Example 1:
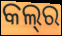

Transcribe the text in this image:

କଲ୍‌ର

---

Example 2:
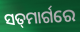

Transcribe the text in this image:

ସତ୍‌ମାର୍ଗରେ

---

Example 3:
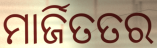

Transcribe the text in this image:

ମାର୍ଜିତତର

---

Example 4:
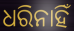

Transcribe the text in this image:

ଧରିନାହିଁ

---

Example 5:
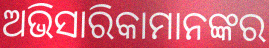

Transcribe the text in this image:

ଅଭିସାରିକାମାନଙ୍କର